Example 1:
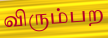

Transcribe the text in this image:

விரும்பற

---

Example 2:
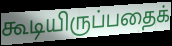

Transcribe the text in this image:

கூடியிருப்பதைக்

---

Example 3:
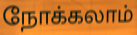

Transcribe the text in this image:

நோக்கலாம்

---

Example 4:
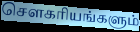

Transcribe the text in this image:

சௌகரியங்களும்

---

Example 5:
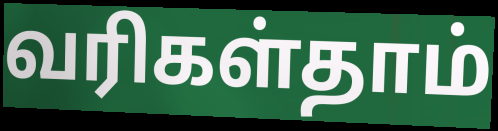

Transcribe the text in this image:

வரிகள்தாம்